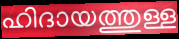
ഹിദായത്തുള്ള